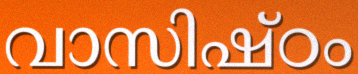
വാസിഷ്ഠം